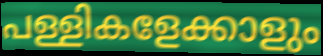
പള്ളികളേക്കാളും